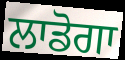
ਲਾਡੋਗਾ